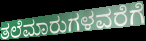
ತಲೆಮಾರುಗಳವರೆಗೆ